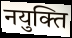
नयुक्ति